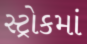
સ્ટ્રોકમાં